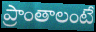
ప్రాంతాలంటే